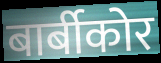
बार्बीकोर